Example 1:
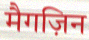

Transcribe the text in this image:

मैगज़िन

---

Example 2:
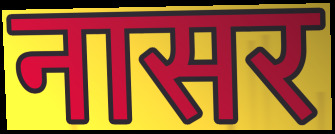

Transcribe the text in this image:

नासर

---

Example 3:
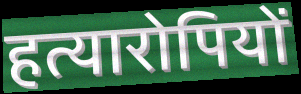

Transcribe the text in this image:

हत्यारोपियों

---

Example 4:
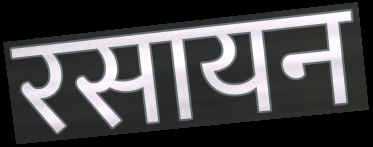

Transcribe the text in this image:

रसायन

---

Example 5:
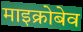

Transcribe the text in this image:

माइक्रोबेव